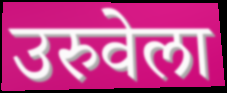
उरुवेला